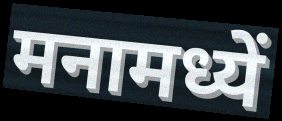
मनामध्यें